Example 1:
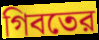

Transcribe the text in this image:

গিবতের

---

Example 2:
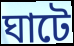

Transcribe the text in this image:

ঘাটে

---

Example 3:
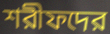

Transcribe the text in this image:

শরীফদের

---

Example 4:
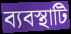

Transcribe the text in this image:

ব্যবস্থাটি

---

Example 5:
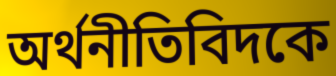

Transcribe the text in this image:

অর্থনীতিবিদকে